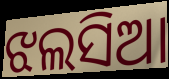
ଝଲସିଆ